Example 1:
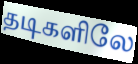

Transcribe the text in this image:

தடிகளிலே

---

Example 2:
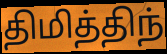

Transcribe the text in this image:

திமித்திந்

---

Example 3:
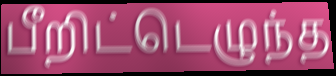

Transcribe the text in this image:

பீறிட்டெழுந்த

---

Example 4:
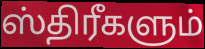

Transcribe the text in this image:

ஸ்திரீகளும்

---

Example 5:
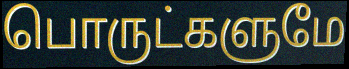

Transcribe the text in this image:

பொருட்களுமே